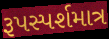
રૂપસ્પર્શમાત્ર